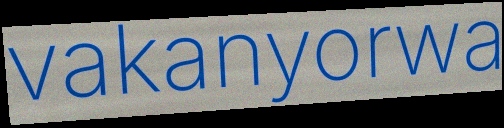
vakanyorwa